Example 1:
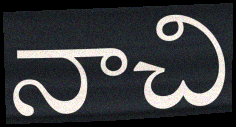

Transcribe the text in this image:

నాచి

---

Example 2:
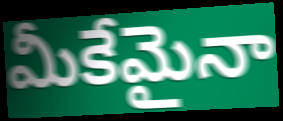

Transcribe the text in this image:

మీకేమైనా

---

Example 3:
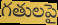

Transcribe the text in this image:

గతులపై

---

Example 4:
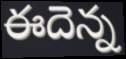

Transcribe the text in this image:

ఈదెన్న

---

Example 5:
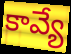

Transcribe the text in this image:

కావ్యే